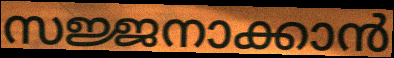
സജ്ജനാക്കാൻ